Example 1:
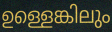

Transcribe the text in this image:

ഉള്ളെങ്കിലും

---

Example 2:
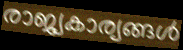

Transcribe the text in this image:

രാജ്യകാര്യങ്ങൾ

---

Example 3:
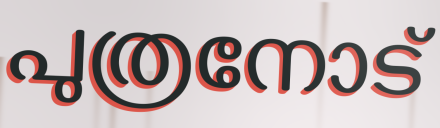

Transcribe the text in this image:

പുത്രനോട്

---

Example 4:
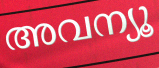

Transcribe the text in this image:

അവന്യൂ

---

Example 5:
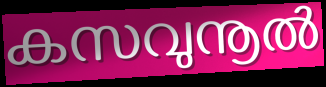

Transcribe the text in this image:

കസവുനൂൽ